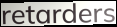
retarders